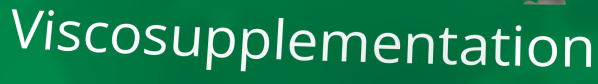
Viscosupplementation